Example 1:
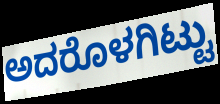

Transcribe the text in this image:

ಅದರೊಳಗಿಟ್ಟು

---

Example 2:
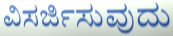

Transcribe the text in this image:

ವಿಸರ್ಜಿಸುವುದು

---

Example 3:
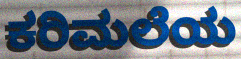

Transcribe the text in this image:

ಕರಿಮಲೆಯ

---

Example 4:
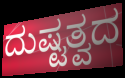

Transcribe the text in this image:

ದುಷ್ಟತ್ವದ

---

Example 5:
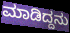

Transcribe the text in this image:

ಮಾಡಿದ್ದನು